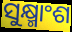
ସୁକ୍ଷ୍ମାଂଶ